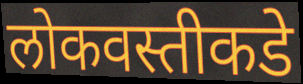
लोकवस्तीकडे